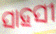
ସାହସୀ